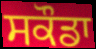
ਸਕੌਡਾ